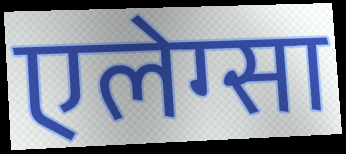
एलेग्सा